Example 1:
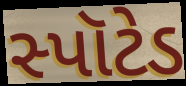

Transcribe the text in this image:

સ્પૉટેડ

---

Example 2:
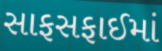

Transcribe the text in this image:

સાફસફાઈમાં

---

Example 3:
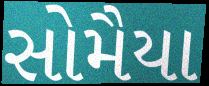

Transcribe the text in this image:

સોમૈયા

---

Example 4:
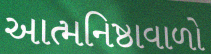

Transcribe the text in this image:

આત્મનિષ્ઠાવાળો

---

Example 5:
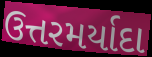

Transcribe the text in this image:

ઉત્તરમર્યાદા